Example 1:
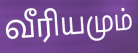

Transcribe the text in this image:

வீரியமும்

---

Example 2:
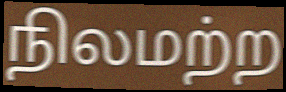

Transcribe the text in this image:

நிலமற்ற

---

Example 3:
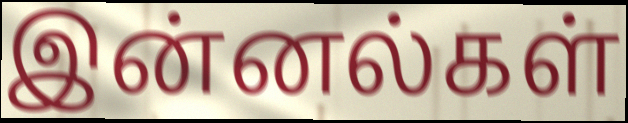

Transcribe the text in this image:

இன்னல்கள்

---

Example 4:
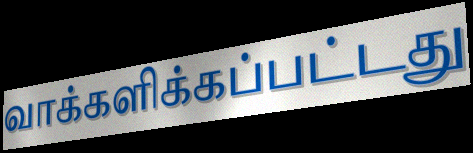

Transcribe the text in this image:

வாக்களிக்கப்பட்டது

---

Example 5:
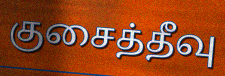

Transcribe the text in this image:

குசைத்தீவு